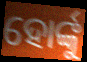
ହୋର୍ଙ୍କୁ